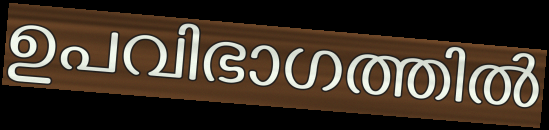
ഉപവിഭാഗത്തിൽ